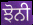
ਝੋਨੀ